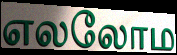
எலலோம